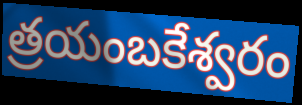
త్రయంబకేశ్వరం